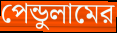
পেন্ডুলামের